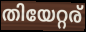
തിയേറ്റര്